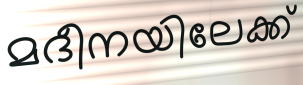
മദീനയിലേക്ക്